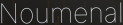
Noumenal